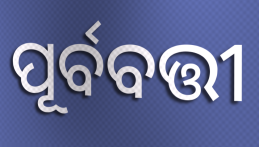
ପୂର୍ବବତ୍ତୀ